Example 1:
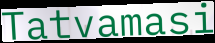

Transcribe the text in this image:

Tatvamasi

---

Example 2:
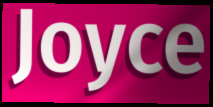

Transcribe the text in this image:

Joyce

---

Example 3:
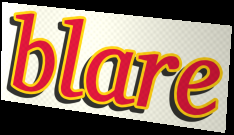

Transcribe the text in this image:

blare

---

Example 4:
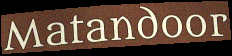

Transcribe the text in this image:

Matandoor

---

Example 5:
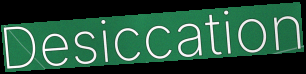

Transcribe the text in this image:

Desiccation